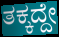
ತಕ್ಕದ್ದೇ